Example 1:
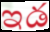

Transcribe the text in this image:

ఇడ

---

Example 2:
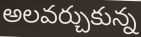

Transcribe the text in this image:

అలవర్చుకున్న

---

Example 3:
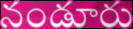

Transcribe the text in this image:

నండూరు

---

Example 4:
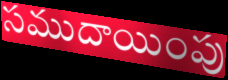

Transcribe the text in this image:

సముదాయింపు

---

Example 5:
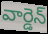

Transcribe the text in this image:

వార్డెన్